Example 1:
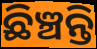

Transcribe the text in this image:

ଛିଞ୍ଚନ୍ତି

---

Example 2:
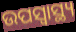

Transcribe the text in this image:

ଉପସ୍ୱାସ୍ଥ୍ୟ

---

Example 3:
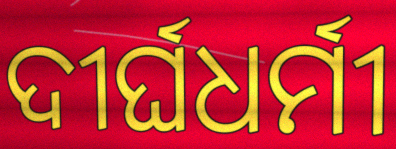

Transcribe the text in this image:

ଦୀର୍ଘଧର୍ମୀ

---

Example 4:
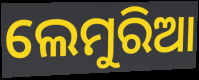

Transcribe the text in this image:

ଲେମୁରିଆ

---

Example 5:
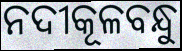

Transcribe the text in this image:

ନଦୀକୂଳବନ୍ଧୁ